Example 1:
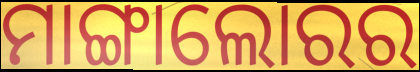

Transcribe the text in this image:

ମାଙ୍ଗାଲୋରର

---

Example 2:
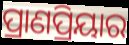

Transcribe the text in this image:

ପ୍ରାଣପ୍ରିୟାର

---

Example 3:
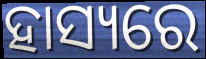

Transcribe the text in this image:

ହାସ୍ୟରେ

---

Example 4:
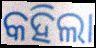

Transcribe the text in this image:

କହିଲା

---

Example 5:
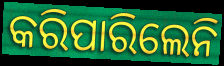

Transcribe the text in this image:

କରିପାରିଲେନି